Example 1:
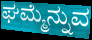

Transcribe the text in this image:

ಘಮ್ಮೆನ್ನುವ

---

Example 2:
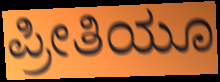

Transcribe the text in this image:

ಪ್ರೀತಿಯೂ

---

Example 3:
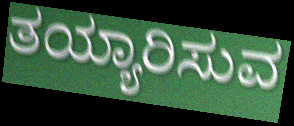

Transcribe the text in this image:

ತಯ್ಯಾರಿಸುವ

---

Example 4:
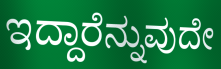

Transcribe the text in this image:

ಇದ್ದಾರೆನ್ನುವುದೇ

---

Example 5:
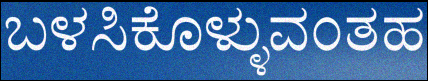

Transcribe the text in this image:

ಬಳಸಿಕೊಳ್ಳುವಂತಹ